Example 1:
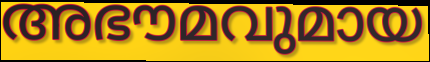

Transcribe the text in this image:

അഭൗമവുമായ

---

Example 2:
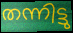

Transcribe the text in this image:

തന്നിട്ടു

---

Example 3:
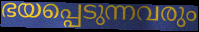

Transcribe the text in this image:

ഭയപ്പെടുന്നവരും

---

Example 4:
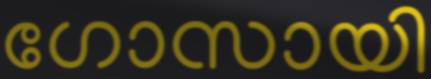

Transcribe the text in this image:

ഗോസായി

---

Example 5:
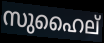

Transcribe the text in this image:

സുഹൈല്